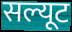
सल्यूट